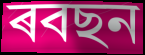
ৰবছন